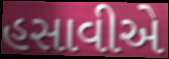
હસાવીએ